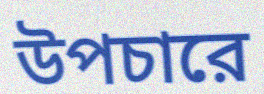
উপচারে